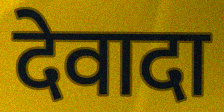
देवादा